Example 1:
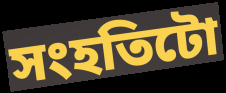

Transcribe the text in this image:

সংহতিটো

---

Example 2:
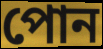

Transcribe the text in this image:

পোন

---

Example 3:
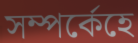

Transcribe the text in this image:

সম্পৰ্কেহে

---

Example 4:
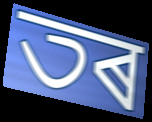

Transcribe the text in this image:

তৰ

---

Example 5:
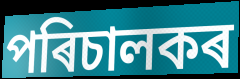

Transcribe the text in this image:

পৰিচালকৰ